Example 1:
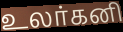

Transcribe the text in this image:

உலர்கனி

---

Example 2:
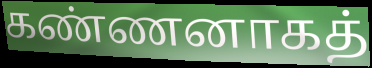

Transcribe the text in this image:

கண்ணனாகத்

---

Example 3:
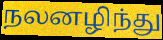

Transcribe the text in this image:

நலனழிந்து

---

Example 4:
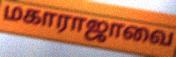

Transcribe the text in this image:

மகாராஜாவை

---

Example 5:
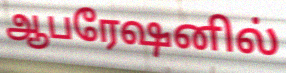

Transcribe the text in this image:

ஆபரேஷனில்